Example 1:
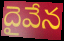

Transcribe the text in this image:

దైవేన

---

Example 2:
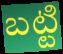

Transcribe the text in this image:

బట్టి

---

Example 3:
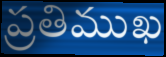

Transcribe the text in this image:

ప్రతిముఖ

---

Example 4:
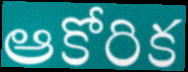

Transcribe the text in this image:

ఆకోరిక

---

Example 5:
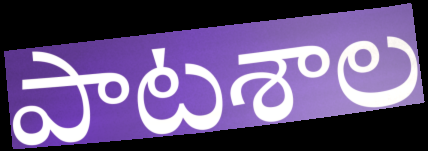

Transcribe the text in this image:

పాటశాల